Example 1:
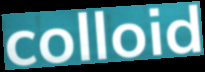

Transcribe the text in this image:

colloid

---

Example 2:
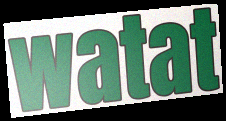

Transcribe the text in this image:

watat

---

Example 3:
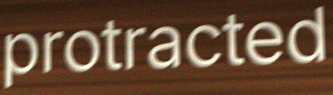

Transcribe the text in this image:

protracted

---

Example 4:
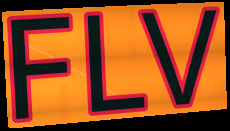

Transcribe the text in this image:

FLV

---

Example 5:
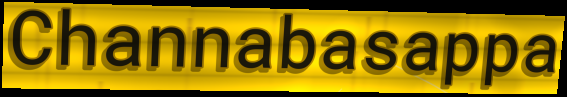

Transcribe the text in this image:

Channabasappa